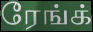
ரேங்க்